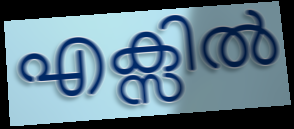
എക്സിൽ